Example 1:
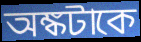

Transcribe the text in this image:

অঙ্কটাকে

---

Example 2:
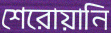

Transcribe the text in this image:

শেরোয়ানি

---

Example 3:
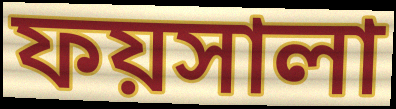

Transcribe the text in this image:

ফয়সালা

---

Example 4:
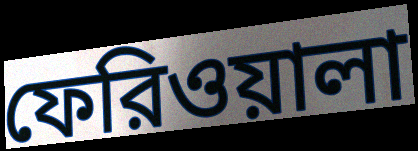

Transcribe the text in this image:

ফেরিওয়ালা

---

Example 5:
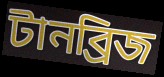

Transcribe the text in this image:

টানব্রিজ